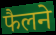
फैलने